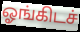
ஓங்கிடச்